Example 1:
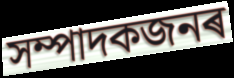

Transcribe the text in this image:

সম্পাদকজনৰ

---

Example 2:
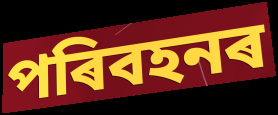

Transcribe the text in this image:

পৰিবহনৰ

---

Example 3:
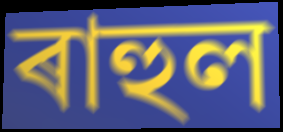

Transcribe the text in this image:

ৰাহুল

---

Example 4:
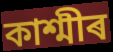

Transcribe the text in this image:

কাশ্মীৰ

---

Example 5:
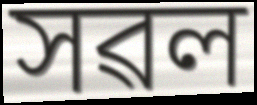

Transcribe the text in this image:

সৱল